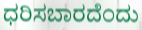
ಧರಿಸಬಾರದೆಂದು